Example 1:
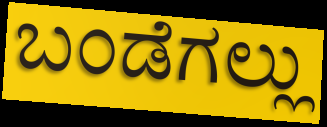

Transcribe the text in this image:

ಬಂಡೆಗಲ್ಲು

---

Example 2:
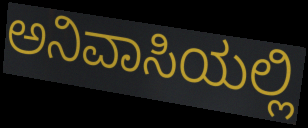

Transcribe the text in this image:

ಅನಿವಾಸಿಯಲ್ಲಿ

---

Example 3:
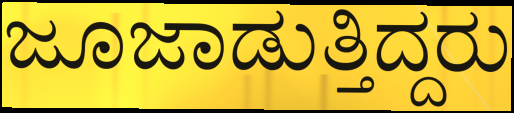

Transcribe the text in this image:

ಜೂಜಾಡುತ್ತಿದ್ದರು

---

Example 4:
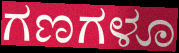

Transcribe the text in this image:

ಗಣಗಳೂ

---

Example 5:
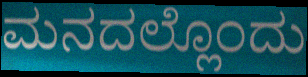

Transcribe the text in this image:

ಮನದಲ್ಲೊಂದು